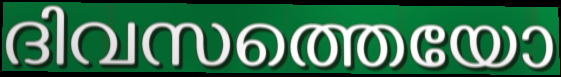
ദിവസത്തെയോ